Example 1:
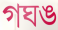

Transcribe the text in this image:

গঘঙ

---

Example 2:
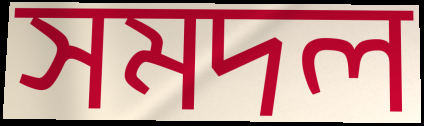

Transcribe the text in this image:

সমদল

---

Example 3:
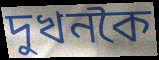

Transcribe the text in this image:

দুখনকৈ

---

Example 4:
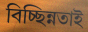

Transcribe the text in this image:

বিচ্ছিন্নতাই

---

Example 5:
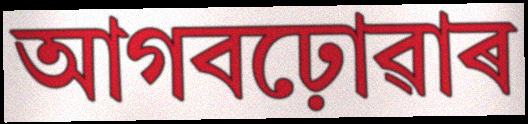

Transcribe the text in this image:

আগবঢ়োৱাৰ